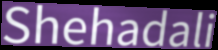
Shehadali